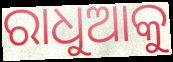
ରାଧୁଆକୁ